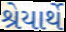
શ્રેયાર્થે